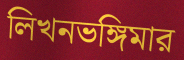
লিখনভঙ্গিমার